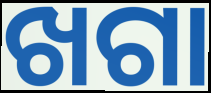
ଖଗା